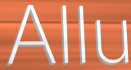
Allu